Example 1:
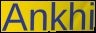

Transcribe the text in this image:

Ankhi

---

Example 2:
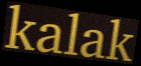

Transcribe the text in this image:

kalak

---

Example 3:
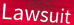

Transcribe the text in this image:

Lawsuit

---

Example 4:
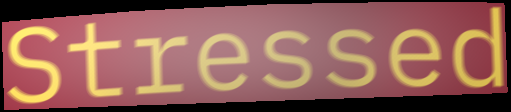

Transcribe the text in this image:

Stressed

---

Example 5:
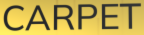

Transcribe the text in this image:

CARPET